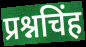
प्रश्नचिंह